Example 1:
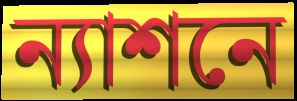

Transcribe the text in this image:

ন্যাশনে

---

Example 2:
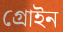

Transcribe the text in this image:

গ্রোইন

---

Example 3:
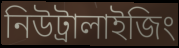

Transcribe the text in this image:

নিউট্রালাইজিং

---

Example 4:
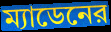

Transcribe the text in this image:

ম্যাডেনের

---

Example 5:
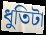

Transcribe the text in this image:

ধুতিটা